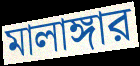
মালাঙ্গার